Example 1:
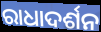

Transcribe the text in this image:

ରାଧାଦର୍ଶନ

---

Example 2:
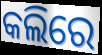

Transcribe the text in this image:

କଲିରେ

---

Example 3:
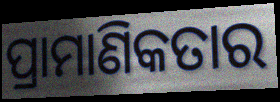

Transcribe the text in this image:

ପ୍ରାମାଣିକତାର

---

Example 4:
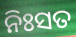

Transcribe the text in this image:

ନିଃସତ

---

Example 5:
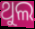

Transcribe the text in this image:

ଥୁଲ